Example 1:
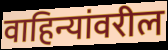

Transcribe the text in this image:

वाहिन्यांवरील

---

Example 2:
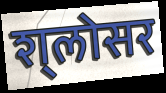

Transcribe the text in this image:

श्लोसर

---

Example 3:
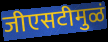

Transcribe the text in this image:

जीएसटीमुळं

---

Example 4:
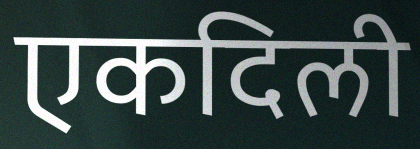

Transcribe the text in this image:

एकदिली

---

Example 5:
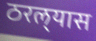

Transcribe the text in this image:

ठरल्यास